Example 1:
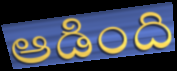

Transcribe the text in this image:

ఆడింది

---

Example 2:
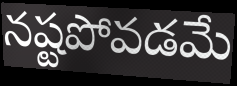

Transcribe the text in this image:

నష్టపోవడమే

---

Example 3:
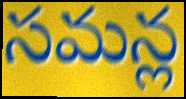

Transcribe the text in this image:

సమన్ల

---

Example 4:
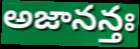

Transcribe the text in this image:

అజానన్తః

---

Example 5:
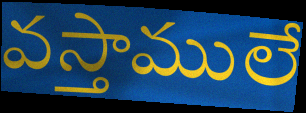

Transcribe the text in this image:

వస్తాములే